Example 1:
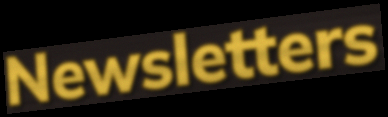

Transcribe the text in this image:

Newsletters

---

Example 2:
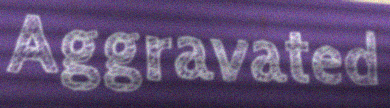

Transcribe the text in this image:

Aggravated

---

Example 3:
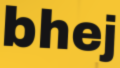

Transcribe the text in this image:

bhej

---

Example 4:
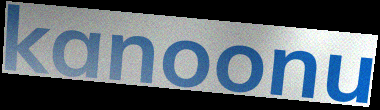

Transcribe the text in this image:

kanoonu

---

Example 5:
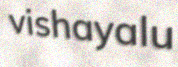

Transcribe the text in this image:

vishayalu